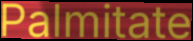
Palmitate